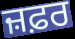
ਜ਼ਫ਼ਰ